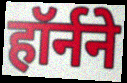
हॉर्नने